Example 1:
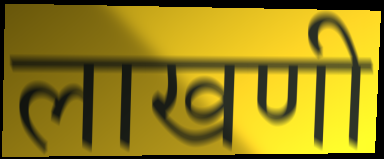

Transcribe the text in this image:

लाखणी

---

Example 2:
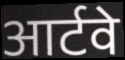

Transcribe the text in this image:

आर्टवे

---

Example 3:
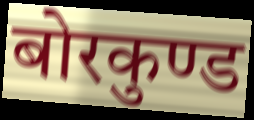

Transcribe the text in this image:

बोरकुण्ड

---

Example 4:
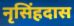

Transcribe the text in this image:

नृसिंहदास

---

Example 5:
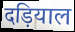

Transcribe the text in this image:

दड़ियाल